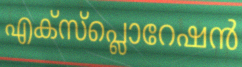
എക്സ്പ്ലൊറേഷൻ